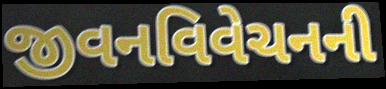
જીવનવિવેચનની